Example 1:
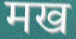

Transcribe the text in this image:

मख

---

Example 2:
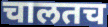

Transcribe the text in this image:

चालतच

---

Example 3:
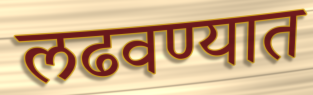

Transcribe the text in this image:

लढवण्यात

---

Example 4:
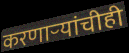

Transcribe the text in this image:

करणाऱ्यांचीही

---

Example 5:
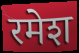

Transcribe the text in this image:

रमेश